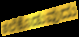
ತಲೆಕೊಡುವುದು